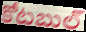
కోటబుల్